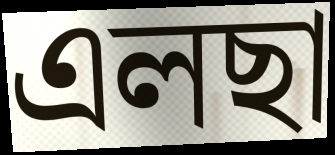
এলছা